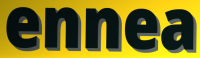
ennea